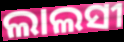
ଲାଲସୀ